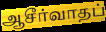
ஆசீர்வாதப்